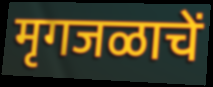
मृगजळाचें